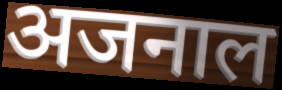
अजनाल